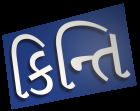
કિન્તિ